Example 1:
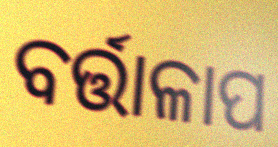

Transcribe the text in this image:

ବର୍ତ୍ତାଳାପ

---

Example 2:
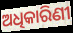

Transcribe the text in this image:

ଅଧିକାରିଣୀ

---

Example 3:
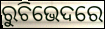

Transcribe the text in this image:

ରୁଚିଭେଦରେ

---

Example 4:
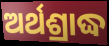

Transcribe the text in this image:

ଅର୍ଥଶ୍ରାଦ୍ଧ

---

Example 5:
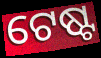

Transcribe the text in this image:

ଟେଷ୍ଟ